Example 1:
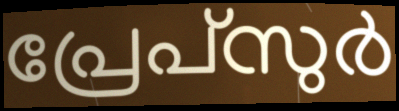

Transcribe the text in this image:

പ്രേപ്സുർ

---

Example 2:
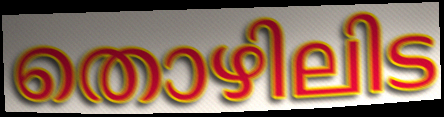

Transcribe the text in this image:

തൊഴിലിട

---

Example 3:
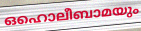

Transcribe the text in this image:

ഒഹൊലീബാമയും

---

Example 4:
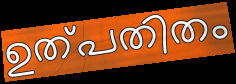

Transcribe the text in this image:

ഉത്പതിതം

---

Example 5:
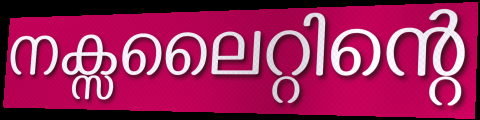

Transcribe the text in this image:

നക്സലൈറ്റിന്റെ